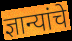
ज्ञान्यांचे